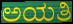
ಅಯತಿ